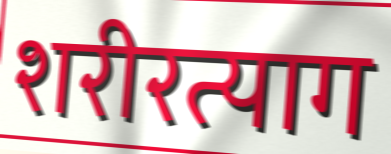
शरीरत्याग